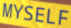
MYSELF